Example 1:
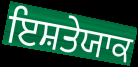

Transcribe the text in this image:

ਇਸ਼ਤੇਯਾਕ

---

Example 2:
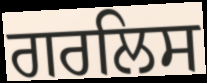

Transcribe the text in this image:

ਗਰਲਿਸ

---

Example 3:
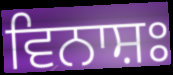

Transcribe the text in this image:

ਵਿਨਾਸ਼ਃ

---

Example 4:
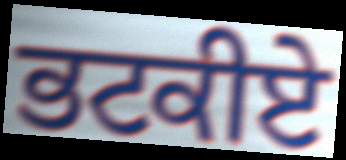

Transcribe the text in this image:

ਭਟਕੀਏ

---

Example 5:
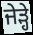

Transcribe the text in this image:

ਜੇੜ੍ਹੇ